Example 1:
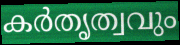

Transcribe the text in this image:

കർതൃത്വവും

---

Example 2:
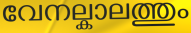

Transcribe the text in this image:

വേനല്കാലത്തും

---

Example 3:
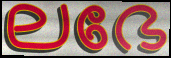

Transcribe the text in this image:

ലഭേ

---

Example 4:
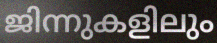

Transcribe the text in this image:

ജിന്നുകളിലും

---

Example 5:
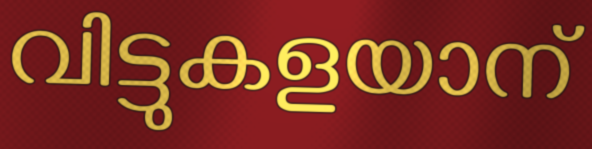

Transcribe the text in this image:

വിട്ടുകളയാന്